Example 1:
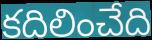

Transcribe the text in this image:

కదిలించేది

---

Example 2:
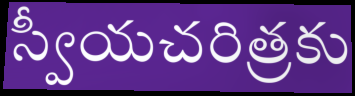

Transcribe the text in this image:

స్వీయచరిత్రకు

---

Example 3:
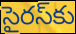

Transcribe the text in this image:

సైరస్‌కు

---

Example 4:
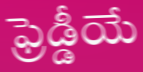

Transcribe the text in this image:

ఫ్రెడ్డీయే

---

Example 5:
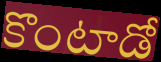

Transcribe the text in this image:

కొంటాడో